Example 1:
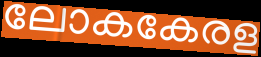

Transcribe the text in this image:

ലോകകേരള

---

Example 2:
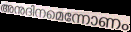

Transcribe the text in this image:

അനുദിനമെന്നോണം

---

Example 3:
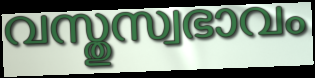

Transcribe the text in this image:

വസ്തുസ്വഭാവം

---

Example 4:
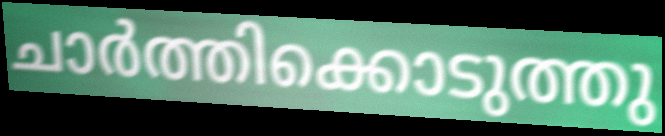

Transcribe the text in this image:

ചാർത്തിക്കൊടുത്തു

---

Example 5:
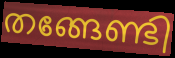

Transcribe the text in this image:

തങ്ങേണ്ടി